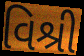
વિશ્રી